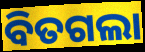
ବିତଗଲା